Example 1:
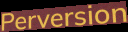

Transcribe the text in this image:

Perversion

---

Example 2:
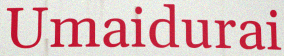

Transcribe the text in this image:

Umaidurai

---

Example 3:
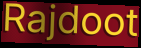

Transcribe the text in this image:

Rajdoot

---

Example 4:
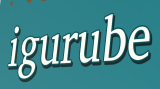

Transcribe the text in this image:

igurube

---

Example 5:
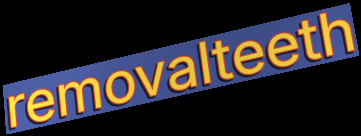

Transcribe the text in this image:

removalteeth